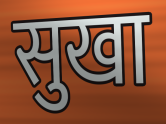
सुखा